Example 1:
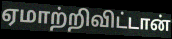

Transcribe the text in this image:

ஏமாற்றிவிட்டான்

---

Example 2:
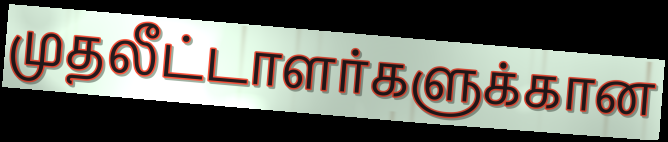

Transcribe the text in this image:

முதலீட்டாளர்களுக்கான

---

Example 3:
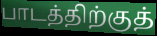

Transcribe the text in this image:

பாடத்திற்குத்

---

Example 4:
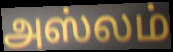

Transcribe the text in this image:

அஸ்லம்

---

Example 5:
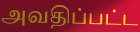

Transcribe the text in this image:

அவதிப்பட்ட